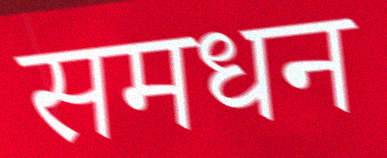
समधन